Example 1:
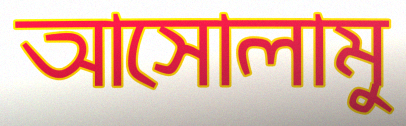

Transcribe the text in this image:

আসোলামু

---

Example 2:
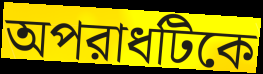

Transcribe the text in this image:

অপরাধটিকে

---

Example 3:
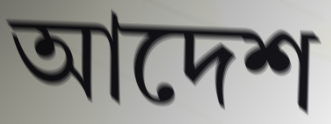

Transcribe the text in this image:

আদেশ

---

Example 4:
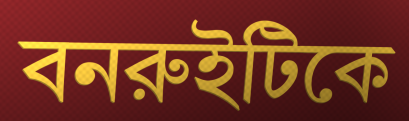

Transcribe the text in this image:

বনরুইটিকে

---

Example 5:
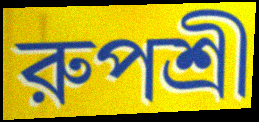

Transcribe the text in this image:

রুপশ্রী